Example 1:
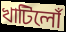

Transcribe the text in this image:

খাটিলোঁ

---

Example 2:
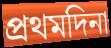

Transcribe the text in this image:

প্ৰথমদিনা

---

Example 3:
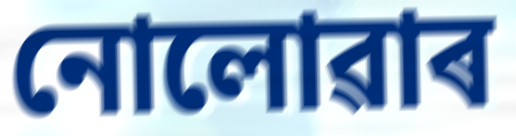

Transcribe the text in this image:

নোলোৱাৰ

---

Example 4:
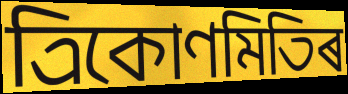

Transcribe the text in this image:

ত্ৰিকোণমিতিৰ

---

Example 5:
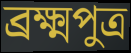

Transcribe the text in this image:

ব্ৰক্ষ্মপুত্ৰ